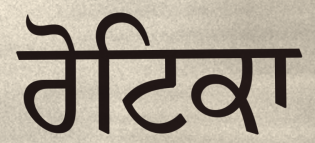
ਰੋਟਿਕਾ